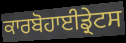
ਕਾਰਬੋਹਾਈਡ੍ਰੇਟਸ